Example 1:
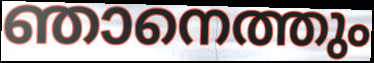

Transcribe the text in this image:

ഞാനെത്തും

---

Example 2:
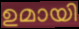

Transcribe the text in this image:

ഉമായി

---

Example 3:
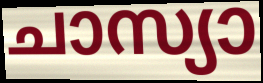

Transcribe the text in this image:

ചാസ്യാ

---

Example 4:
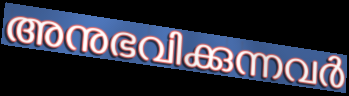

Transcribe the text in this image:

അനുഭവിക്കുന്നവർ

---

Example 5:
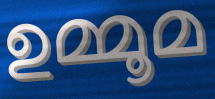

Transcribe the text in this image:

ഉമ്മൂമ